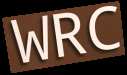
WRC